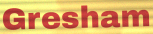
Gresham